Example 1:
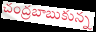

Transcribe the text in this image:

చంద్రబాబుకున్న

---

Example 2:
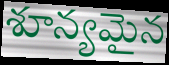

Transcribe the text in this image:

శూన్యమైన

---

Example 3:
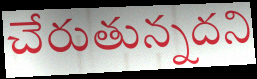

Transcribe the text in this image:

చేరుతున్నదని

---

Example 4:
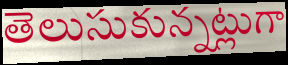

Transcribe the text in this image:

తెలుసుకున్నట్లుగా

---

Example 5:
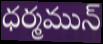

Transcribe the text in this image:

ధర్మమున్